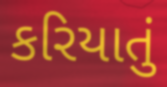
કરિયાતું